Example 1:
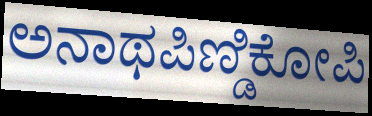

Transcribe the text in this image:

ಅನಾಥಪಿಣ್ಡಿಕೋಪಿ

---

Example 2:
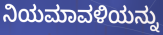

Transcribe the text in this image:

ನಿಯಮಾವಳಿಯನ್ನು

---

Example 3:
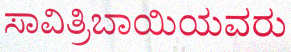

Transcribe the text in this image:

ಸಾವಿತ್ರಿಬಾಯಿಯವರು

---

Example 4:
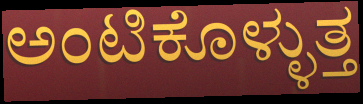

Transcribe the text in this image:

ಅಂಟಿಕೊಳ್ಳುತ್ತ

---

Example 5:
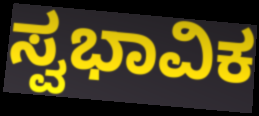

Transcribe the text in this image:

ಸ್ವಭಾವಿಕ